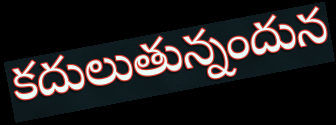
కదులుతున్నందున